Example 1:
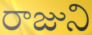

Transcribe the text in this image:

రాజుని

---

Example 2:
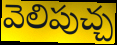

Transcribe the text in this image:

వెలిపుచ్చ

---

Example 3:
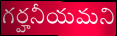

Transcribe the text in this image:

గర్హనీయమని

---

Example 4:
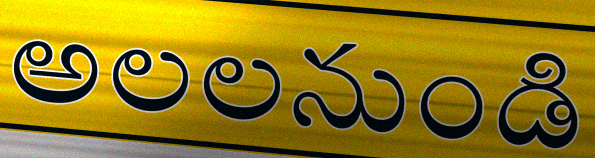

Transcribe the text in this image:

అలలనుండి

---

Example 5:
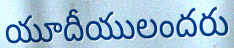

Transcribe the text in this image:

యూదీయులందరు